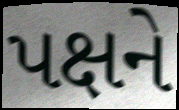
પક્ષને